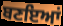
ਬਣਇਆਂ